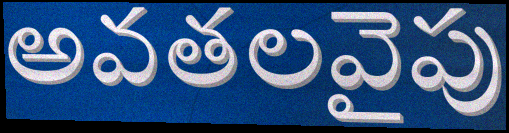
అవతలవైపు